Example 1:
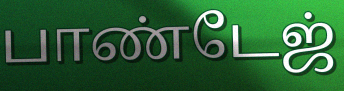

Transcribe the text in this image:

பாண்டேஜ்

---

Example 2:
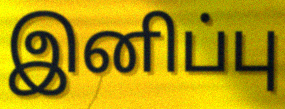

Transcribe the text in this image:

இனிப்பு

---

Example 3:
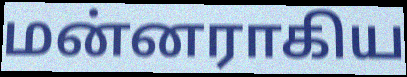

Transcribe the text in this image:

மன்னராகிய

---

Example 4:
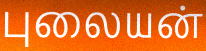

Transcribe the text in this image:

புலையன்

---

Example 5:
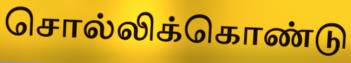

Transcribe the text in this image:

சொல்லிக்கொண்டு